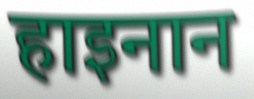
हाइनान